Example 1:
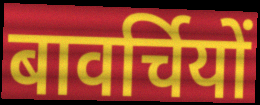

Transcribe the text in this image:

बावर्चियों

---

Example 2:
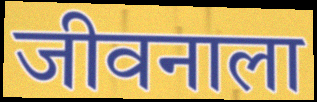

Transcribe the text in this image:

जीवनाला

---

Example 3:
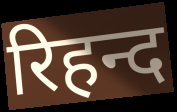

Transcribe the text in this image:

रिहन्द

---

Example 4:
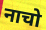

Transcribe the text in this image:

नाचो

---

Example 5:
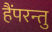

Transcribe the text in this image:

हैंपरन्तु